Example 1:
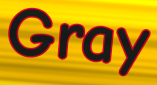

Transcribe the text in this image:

Gray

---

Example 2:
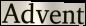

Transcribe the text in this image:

Advent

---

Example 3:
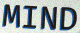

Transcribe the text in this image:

MIND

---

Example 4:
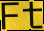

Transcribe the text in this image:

Ft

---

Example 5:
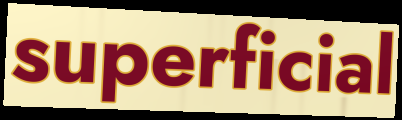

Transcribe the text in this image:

superficial